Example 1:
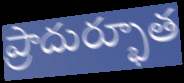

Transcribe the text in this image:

ప్రాదుర్భూత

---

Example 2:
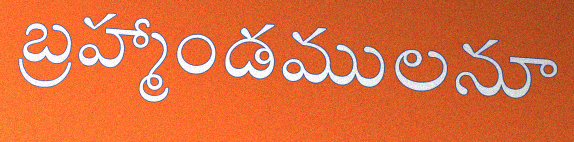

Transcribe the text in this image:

బ్రహ్మాండములనూ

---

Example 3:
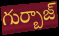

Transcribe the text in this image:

గుర్బాజ్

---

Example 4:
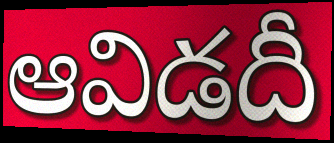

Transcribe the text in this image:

ఆవిడదీ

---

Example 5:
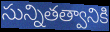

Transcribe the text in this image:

సున్నితత్వానికి